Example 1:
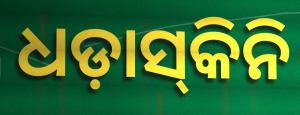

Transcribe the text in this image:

ଧଡ଼ାସ୍‌କିନି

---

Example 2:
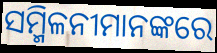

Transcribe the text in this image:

ସମ୍ମିଳନୀମାନଙ୍କରେ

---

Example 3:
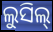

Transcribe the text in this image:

ଲୁସିଲ୍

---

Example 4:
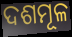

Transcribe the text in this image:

ଦଶମୂଳ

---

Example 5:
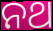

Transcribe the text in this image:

ନଥ